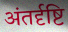
अंतर्दृष्टि